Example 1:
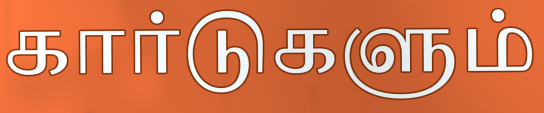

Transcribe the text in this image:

கார்டுகளும்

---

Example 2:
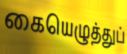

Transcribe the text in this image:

கையெழுத்துப்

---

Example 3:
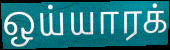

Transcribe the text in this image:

ஒய்யாரக்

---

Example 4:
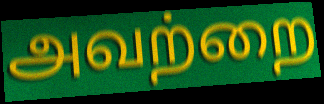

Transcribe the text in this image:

அவற்றை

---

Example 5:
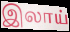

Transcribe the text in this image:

இலாய்